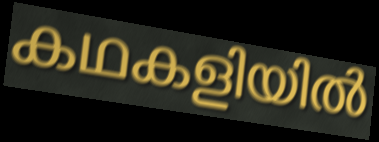
കഥകളിയിൽ